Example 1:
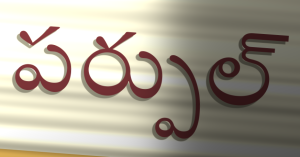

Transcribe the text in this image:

పర్పుల్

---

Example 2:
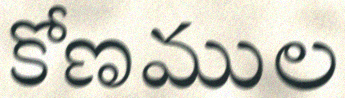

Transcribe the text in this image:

కోణముల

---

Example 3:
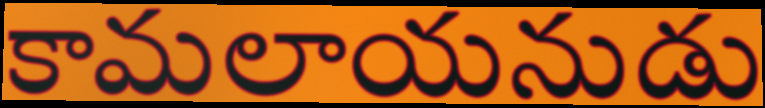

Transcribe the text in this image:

కామలాయనుడు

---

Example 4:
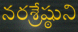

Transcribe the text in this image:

నరశ్రేష్ఠుని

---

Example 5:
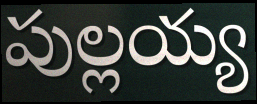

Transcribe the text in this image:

పుల్లయ్య